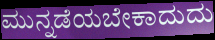
ಮುನ್ನಡೆಯಬೇಕಾದುದು